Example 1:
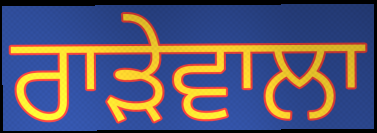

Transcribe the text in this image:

ਰਾੜੇਵਾਲਾ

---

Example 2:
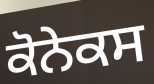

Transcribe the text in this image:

ਕੋਨੇਕਸ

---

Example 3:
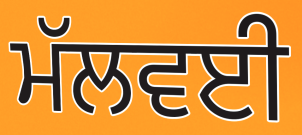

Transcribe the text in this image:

ਮੱਲਵਈ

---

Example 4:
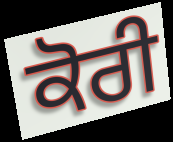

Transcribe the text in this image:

ਕੋਰੀ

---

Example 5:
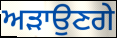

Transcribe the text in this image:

ਅੜਾਉਣਗੇ